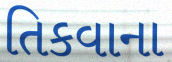
તિકવાના